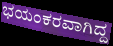
ಭಯಂಕರವಾಗಿದ್ದ